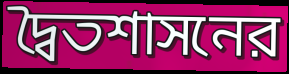
দ্বৈতশাসনের